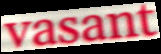
vasant